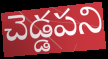
చెడ్డపని